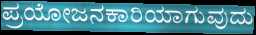
ಪ್ರಯೋಜನಕಾರಿಯಾಗುವುದು